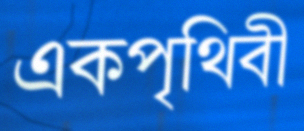
একপৃথিবী